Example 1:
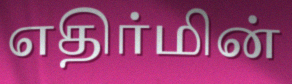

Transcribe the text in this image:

எதிர்மின்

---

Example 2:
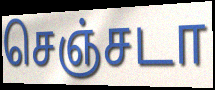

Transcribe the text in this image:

செஞ்சடா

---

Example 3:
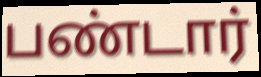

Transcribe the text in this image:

பண்டார்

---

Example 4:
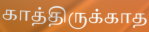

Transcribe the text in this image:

காத்திருக்காத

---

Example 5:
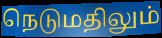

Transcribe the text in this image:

நெடுமதிலும்